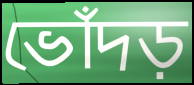
ভোঁদড়